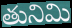
తునిమి